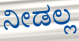
ನೀಡಲ್ಲ